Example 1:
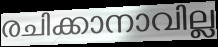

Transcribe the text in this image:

രചിക്കാനാവില്ല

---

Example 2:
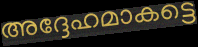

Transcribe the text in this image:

അദ്ദേഹമാകട്ടെ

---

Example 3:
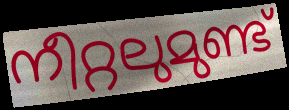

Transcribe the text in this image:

നീറ്റലുമുണ്ട്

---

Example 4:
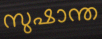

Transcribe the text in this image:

സുഷാന്ത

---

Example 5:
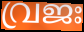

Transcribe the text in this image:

വ്രജഃ